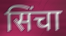
सिंचा